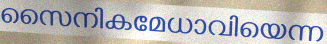
സൈനികമേധാവിയെന്ന